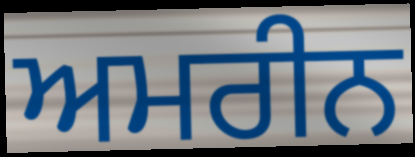
ਅਮਰੀਨ